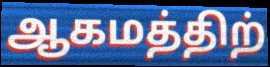
ஆகமத்திற்